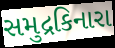
સમુદ્રકિનારા